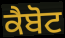
ਕੈਬੋਟ